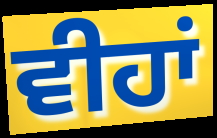
ਵੀਹਾਂ